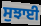
ਸੁਝਾਈ